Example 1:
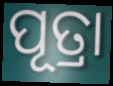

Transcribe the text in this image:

ପୂତ୍ରା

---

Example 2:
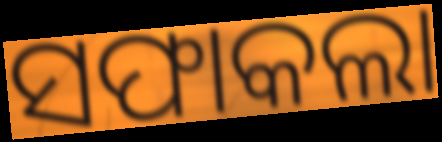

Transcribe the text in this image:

ସଫାକଲା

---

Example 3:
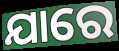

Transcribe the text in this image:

ଯାରେ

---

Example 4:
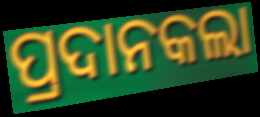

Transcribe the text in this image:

ପ୍ରଦାନକଲା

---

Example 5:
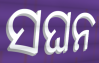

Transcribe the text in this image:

ସଘନ